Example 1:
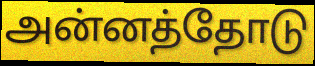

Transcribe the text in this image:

அன்னத்தோடு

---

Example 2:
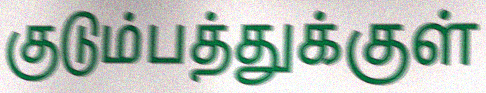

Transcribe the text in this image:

குடும்பத்துக்குள்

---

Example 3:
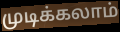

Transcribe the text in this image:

முடிக்கலாம்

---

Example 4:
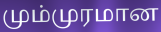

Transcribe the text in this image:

மும்முரமான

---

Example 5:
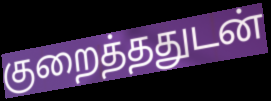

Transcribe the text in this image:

குறைத்ததுடன்